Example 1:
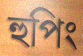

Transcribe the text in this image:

হুপিং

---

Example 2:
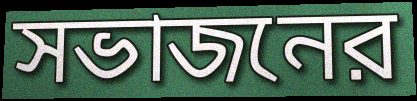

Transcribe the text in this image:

সভাজনের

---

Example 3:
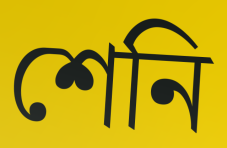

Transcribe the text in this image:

শেনি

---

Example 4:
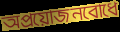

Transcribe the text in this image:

অপ্রয়োজনবোধে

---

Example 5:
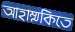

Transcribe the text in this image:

আহাম্মকিতে